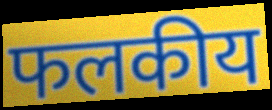
फलकीय